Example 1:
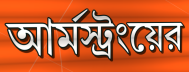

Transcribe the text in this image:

আর্মস্ট্রংয়ের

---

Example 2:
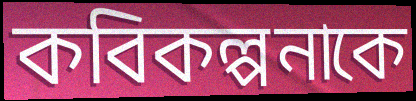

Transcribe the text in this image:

কবিকল্পনাকে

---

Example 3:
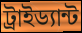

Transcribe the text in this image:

ট্রাইড্যান্ট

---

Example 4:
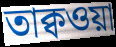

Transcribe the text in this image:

তাক্বওয়া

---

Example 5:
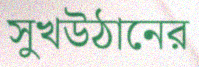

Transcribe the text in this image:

সুখউঠানের